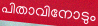
പിതാവിനോടും